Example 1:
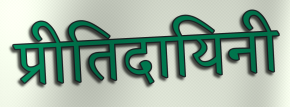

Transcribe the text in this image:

प्रीतिदायिनी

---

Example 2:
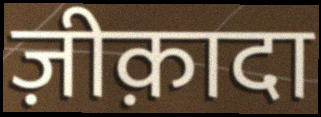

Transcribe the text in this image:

ज़ीक़ादा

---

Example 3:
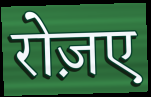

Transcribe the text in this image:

रोज़ए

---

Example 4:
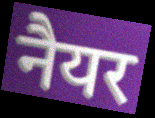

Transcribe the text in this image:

नैयर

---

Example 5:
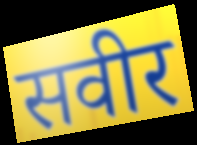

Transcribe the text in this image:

सवीर